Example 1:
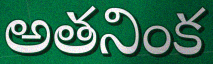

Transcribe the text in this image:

అతనింక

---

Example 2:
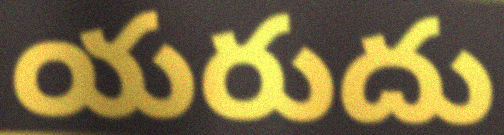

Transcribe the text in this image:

యరుదు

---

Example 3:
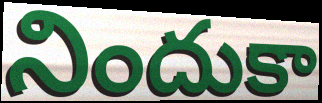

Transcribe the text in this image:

నిందుకా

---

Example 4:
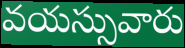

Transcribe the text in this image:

వయస్సువారు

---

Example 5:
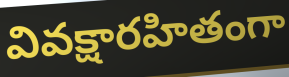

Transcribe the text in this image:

వివక్షారహితంగా